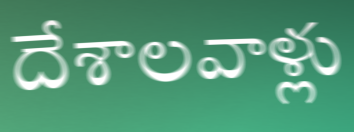
దేశాలవాళ్లు